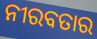
ନୀରବତାର